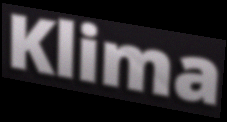
Klima